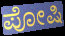
ಪೋಷಿ